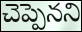
చెప్పెనని